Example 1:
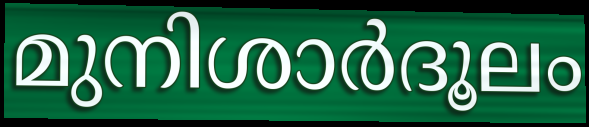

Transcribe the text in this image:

മുനിശാർദൂലം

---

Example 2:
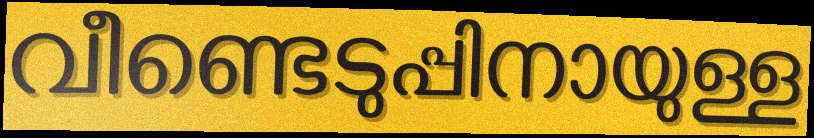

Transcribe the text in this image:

വീണ്ടെടുപ്പിനായുള്ള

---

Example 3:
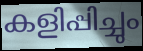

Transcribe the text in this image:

കളിപ്പിച്ചും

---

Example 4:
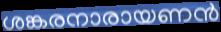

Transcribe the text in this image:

ശങ്കരനാരായണൻ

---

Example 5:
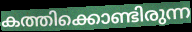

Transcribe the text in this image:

കത്തിക്കൊണ്ടിരുന്ന